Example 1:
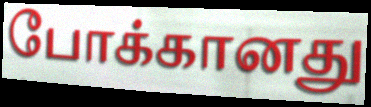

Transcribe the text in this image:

போக்கானது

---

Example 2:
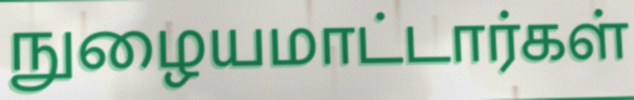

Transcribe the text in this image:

நுழையமாட்டார்கள்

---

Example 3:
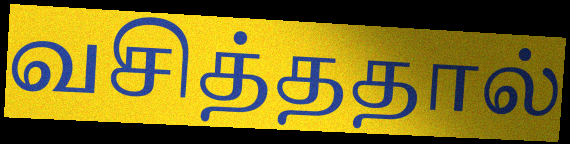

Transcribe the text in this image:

வசித்ததால்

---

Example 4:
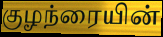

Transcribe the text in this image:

குழந்ரையின்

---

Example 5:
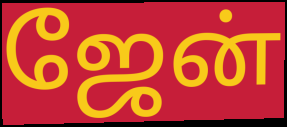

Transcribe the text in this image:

ஜேன்